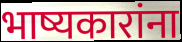
भाष्यकारांना